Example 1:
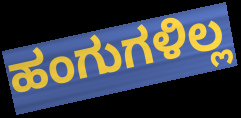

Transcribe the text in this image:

ಹಂಗುಗಳಿಲ್ಲ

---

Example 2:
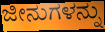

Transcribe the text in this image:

ಜೀನುಗಳನ್ನು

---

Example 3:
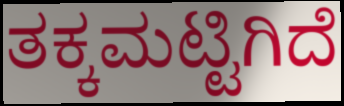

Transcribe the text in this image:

ತಕ್ಕಮಟ್ಟಿಗಿದೆ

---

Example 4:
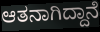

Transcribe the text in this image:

ಆತನಾಗಿದ್ದಾನೆ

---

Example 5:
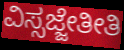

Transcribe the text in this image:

ವಿಸ್ಸಜ್ಜೇತೀತಿ